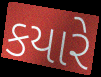
કયારે